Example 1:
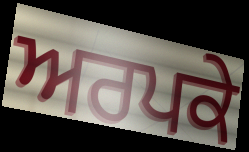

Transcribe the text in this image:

ਅਰਪਕੇ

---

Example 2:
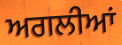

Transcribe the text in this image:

ਅਗਲੀਆਂ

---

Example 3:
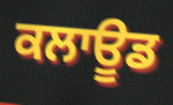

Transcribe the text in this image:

ਕਲਾਊਡ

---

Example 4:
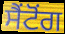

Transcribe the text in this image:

ਸੈਂਟੋਂਗ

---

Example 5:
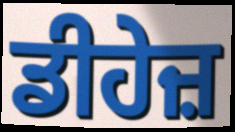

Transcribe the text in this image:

ਡੀਹੇਜ਼